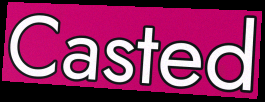
Casted